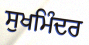
ਸੁਖਮਿੰਦਰ